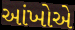
આંખોએ